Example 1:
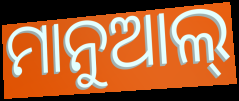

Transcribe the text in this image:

ମାନୁଆଲ୍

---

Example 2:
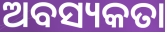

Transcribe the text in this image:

ଅବସ୍ୟକତା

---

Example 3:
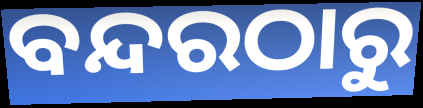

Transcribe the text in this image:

ବନ୍ଦରଠାରୁ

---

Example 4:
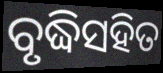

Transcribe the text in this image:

ବୃଦ୍ଧିସହିତ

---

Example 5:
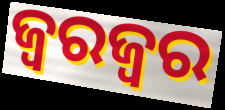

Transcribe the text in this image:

ଜ୍ୱରଜ୍ୱର